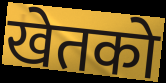
खेतको